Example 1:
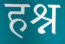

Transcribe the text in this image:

हश्न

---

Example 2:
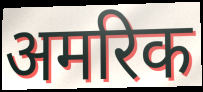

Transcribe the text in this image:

अमरिक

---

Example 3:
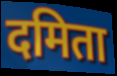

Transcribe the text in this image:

दमिता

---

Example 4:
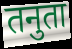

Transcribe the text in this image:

तनुता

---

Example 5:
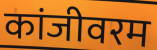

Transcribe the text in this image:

कांजीवरम